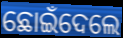
ଛୋଇଁଦେଲେ